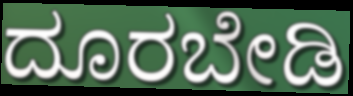
ದೂರಬೇಡಿ